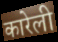
कारेली